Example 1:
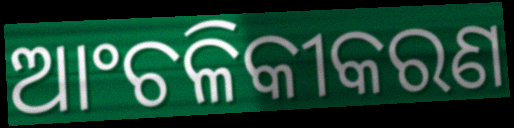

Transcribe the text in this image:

ଆଂଚଳିକୀକରଣ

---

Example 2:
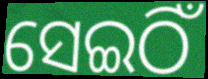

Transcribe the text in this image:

ସେଇଠିଁ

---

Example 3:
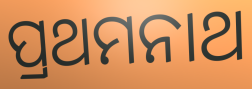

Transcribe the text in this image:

ପ୍ରଥମନାଥ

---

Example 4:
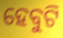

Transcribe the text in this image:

ହେବୁଟି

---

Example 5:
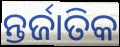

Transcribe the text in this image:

ନ୍ତର୍ଜାତିକ